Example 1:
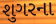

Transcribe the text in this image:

શુગરના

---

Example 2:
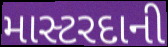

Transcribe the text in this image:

માસ્ટરદાની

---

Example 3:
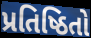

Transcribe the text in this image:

પ્રતિષ્ઠિતો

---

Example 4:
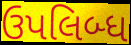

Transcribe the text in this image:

ઉપલિબ્ધ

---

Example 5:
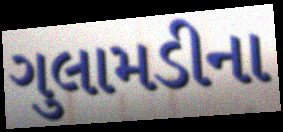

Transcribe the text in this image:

ગુલામડીના